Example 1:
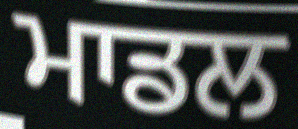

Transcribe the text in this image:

ਮਾਡਲ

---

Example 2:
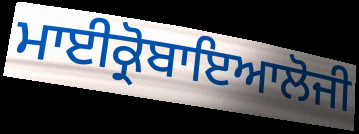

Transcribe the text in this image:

ਮਾਈਕ੍ਰੋਬਾਇਆਲੋਜੀ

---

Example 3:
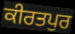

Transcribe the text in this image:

ਕੀਰਤਪੁਰ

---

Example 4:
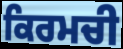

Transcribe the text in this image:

ਕਿਰਮਚੀ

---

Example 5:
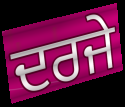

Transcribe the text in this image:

ਦਰਜੇ